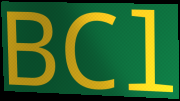
BCl